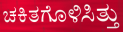
ಚಕಿತಗೊಳಿಸಿತ್ತು